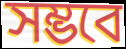
সম্ভবে